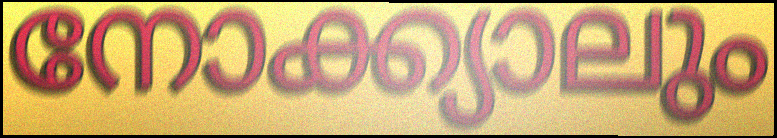
നോക്ക്യാലും